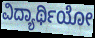
ವಿದ್ಯಾರ್ಥಿಯೋ